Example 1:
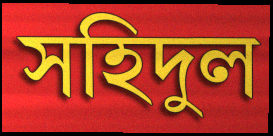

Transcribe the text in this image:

সহিদুল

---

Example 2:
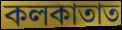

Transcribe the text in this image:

কলকাতাত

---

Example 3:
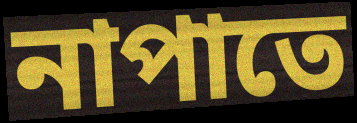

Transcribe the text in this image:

নাপাতে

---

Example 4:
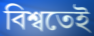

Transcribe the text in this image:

বিশ্বতেই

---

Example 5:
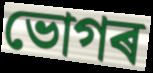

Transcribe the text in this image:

ভোগৰ